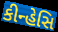
કીન્હેસિ